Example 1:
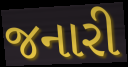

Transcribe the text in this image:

જનારી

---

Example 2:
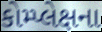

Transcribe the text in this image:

કોમ્પ્લેક્ષના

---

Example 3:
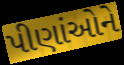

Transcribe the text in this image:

પીણાંઓને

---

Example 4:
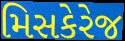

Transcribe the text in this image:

મિસકેરેજ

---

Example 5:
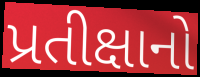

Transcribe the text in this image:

પ્રતીક્ષાનો